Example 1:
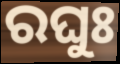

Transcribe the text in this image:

ରଘୁଃ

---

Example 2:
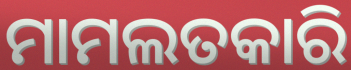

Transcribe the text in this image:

ମାମଲତକାରି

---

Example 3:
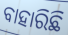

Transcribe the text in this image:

ବାହାରିଛି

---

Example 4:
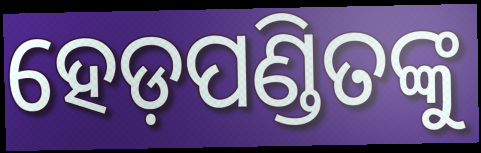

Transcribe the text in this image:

ହେଡ଼ପଣ୍ଡିତଙ୍କୁ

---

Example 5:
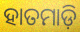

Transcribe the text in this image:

ହାତମାଡ଼ି